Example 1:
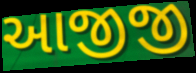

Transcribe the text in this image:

આજીજી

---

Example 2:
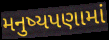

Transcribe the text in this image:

મનુષ્યપણામાં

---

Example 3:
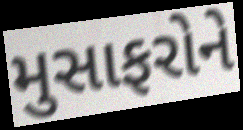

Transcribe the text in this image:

મુસાફરોને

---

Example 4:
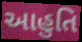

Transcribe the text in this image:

આહુતિ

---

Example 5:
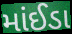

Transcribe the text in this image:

માંઈડા